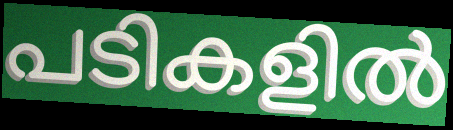
പടികളിൽ